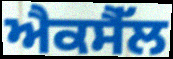
ਐਕਸੈੱਲ